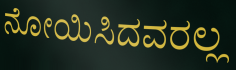
ನೋಯಿಸಿದವರಲ್ಲ